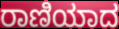
ರಾಣಿಯಾದ